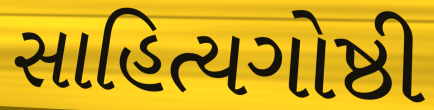
સાહિત્યગોષ્ઠી